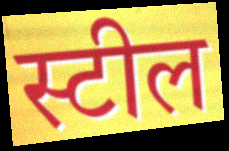
स्टील